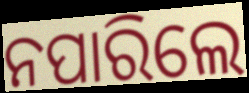
ନପାରିଲେ